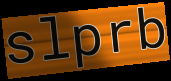
slprb